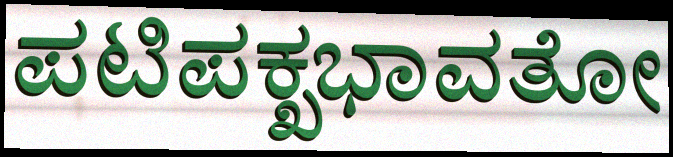
ಪಟಿಪಕ್ಖಭಾವತೋ